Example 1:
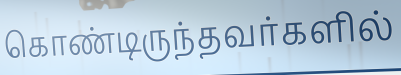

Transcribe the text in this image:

கொண்டிருந்தவர்களில்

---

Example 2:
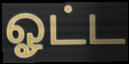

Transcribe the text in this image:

ஓட்ட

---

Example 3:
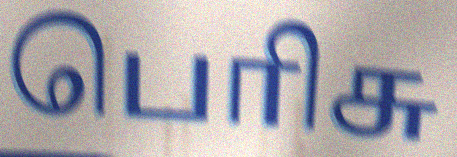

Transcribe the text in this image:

பெரிசு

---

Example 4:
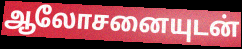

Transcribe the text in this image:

ஆலோசனையுடன்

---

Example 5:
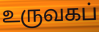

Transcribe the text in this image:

உருவகப்